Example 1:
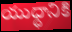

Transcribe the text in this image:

యుధ్ధానికి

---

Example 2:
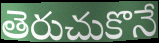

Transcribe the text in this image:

తెరుచుకొనే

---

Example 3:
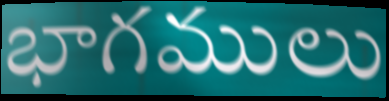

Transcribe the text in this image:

భాగములు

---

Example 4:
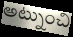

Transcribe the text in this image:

అట్నుంచి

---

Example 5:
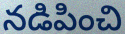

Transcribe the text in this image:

నడిపించి